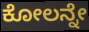
ಕೋಲನ್ನೇ